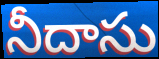
నీదాసు